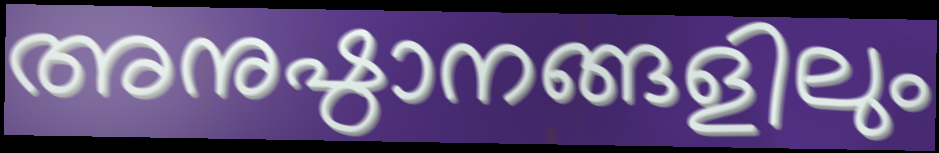
അനുഷ്ഠാനങ്ങളിലും